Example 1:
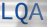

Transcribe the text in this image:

LQA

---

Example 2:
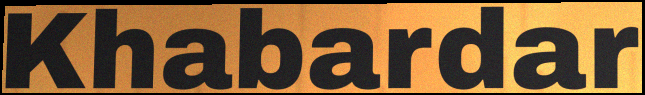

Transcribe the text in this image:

Khabardar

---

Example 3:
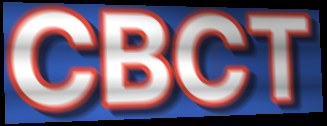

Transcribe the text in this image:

CBCT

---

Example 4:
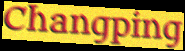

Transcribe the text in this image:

Changping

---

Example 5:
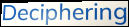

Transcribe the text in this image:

Deciphering